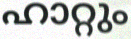
ഹാറ്റും